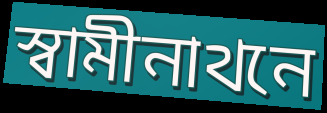
স্বামীনাথনে